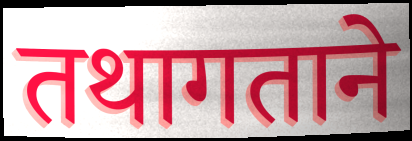
तथागताने